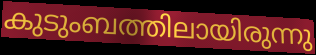
കുടുംബത്തിലായിരുന്നു